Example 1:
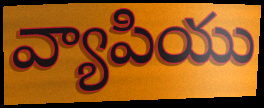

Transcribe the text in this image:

వ్యాపియు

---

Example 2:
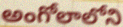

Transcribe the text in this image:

అంగోలాలోని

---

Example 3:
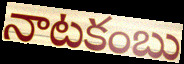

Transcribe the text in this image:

నాటకంబు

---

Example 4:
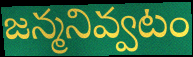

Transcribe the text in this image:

జన్మనివ్వటం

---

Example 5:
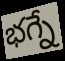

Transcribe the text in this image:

భగ్నే